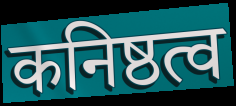
कनिष्ठत्व